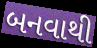
બનવાથી